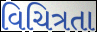
વિચિત્રતા